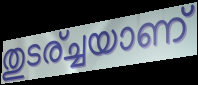
തുടര്ച്ചയാണ്